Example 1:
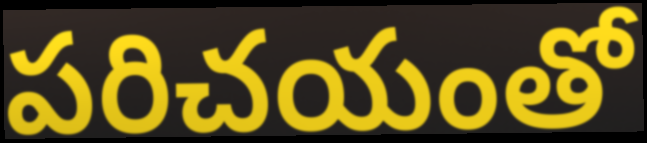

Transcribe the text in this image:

పరిచయంతో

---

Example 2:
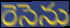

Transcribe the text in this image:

రెసెను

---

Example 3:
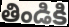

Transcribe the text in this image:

తిండికి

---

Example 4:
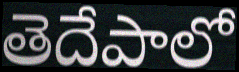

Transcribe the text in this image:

తెదేపాలో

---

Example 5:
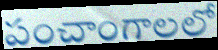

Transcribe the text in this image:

పంచాంగాలలో